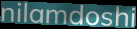
nilamdoshi